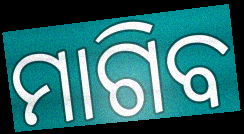
ମାଗିବ